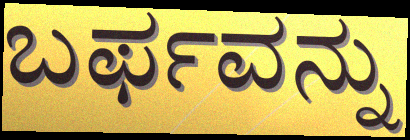
ಬರ್ಫವನ್ನು